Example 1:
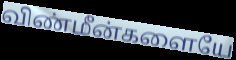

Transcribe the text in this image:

விண்மீன்களையே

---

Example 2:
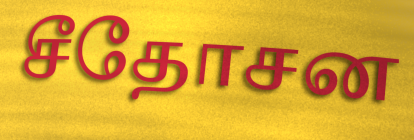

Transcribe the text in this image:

சீதோசன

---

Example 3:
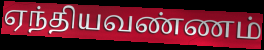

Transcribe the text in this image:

ஏந்தியவண்ணம்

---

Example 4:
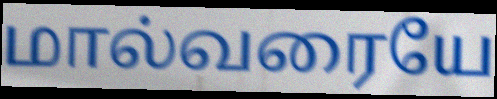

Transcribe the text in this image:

மால்வரையே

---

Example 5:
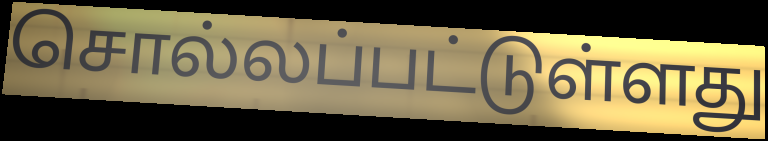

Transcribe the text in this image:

சொல்லப்பட்டுள்ளது